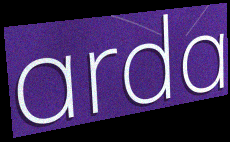
arda